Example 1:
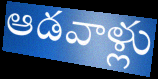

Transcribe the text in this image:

ఆడవాళ్లు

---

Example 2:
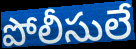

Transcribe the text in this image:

పోలీసులే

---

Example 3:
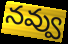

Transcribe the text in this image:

నవ్వు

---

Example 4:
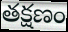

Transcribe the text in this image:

తక్షణం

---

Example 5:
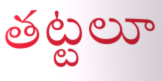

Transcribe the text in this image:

తట్టలూ